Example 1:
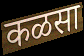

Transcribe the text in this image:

कळसा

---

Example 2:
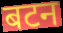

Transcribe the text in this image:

बटन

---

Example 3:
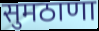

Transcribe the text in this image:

सुमठाणा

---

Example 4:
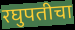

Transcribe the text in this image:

रघुपतीचा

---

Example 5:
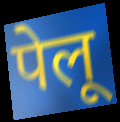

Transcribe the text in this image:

पेलू